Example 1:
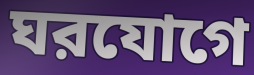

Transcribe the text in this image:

ঘরযোগে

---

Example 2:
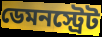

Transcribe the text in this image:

ডেমনস্ট্রেট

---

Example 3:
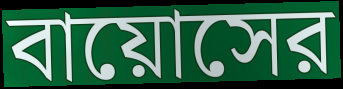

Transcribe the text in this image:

বায়োসের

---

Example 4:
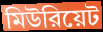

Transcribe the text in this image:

মিউরিয়েট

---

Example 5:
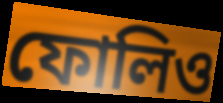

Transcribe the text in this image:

ফোলিও